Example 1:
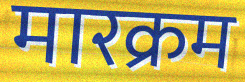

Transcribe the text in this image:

मारक्रम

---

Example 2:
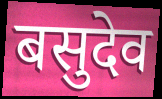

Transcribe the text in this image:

बसुदेव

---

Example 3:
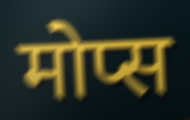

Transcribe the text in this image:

मोप्स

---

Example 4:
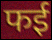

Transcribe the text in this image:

फई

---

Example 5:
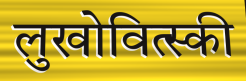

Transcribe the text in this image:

लुखोवित्स्की